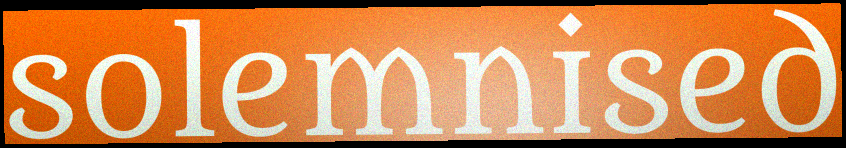
solemnised